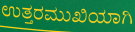
ಉತ್ತರಮುಖಿಯಾಗಿ